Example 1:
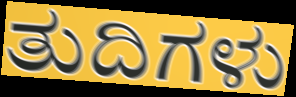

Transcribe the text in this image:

ತುದಿಗಳು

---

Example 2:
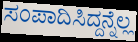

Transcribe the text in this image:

ಸಂಪಾದಿಸಿದ್ದನ್ನೆಲ್ಲ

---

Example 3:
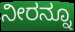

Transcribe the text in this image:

ನೀರನ್ನೂ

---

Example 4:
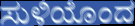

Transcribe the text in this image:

ಸುಳಿಯೊಂದ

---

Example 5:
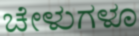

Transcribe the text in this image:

ಚೇಳುಗಳೂ